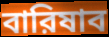
বারিষাব